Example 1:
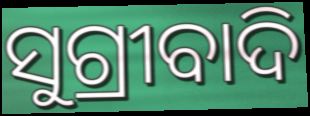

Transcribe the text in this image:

ସୁଗ୍ରୀବାଦି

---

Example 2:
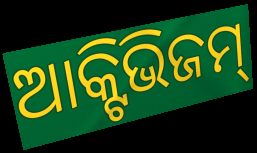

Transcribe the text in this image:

ଆକ୍ଟିଭିଜମ୍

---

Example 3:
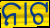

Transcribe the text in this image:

ନାଟ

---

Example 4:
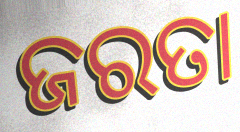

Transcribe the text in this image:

ଜରତା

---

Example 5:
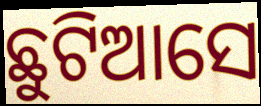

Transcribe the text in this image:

ଛୁଟିଆସେ